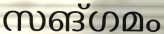
സങ്ഗമം